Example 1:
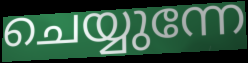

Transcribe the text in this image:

ചെയ്യുന്നേ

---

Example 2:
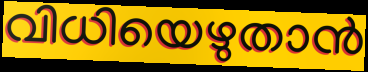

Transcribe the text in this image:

വിധിയെഴുതാൻ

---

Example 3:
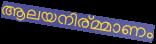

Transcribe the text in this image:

ആലയനിര്മ്മാണം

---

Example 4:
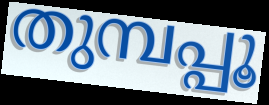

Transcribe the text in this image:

തുമ്പപ്പൂ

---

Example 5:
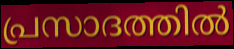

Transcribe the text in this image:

പ്രസാദത്തിൽ